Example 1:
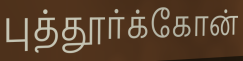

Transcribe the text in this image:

புத்தூர்க்கோன்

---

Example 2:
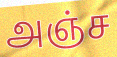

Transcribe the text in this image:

அஞ்ச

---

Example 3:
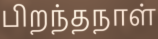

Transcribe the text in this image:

பிறந்தநாள்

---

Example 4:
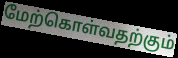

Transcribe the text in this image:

மேற்கொள்வதற்கும்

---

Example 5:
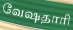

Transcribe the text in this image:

வேஷதாரி